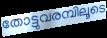
തോട്ടുവരമ്പിലൂടെ